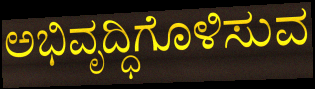
ಅಭಿವೃದ್ಧಿಗೊಳಿಸುವ